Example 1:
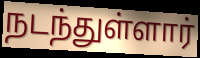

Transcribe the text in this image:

நடந்துள்ளார்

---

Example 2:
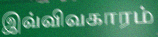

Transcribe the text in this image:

இவ்விவகாரம்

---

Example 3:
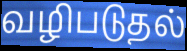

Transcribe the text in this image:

வழிபடுதல்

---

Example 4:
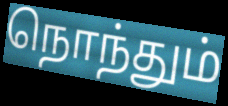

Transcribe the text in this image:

நொந்தும்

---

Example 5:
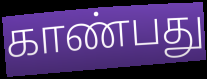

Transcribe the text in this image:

காண்பது